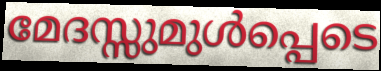
മേദസ്സുമുൾപ്പെടെ